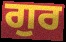
ਗੁਰ